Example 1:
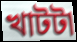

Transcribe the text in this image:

খাটটা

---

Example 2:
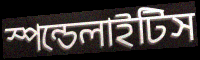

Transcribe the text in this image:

স্পন্ডেলাইটিস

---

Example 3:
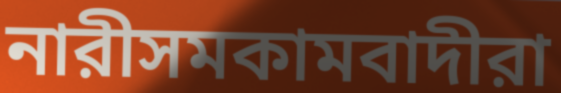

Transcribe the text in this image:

নারীসমকামবাদীরা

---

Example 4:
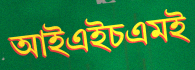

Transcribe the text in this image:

আইএইচএমই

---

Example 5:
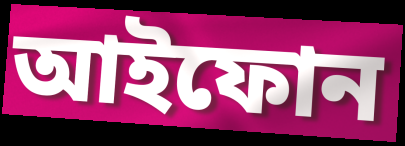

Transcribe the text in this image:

আইফোন